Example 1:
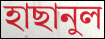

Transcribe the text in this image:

হাছানুল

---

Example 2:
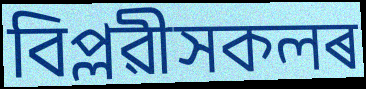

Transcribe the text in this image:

বিপ্লৱীসকলৰ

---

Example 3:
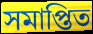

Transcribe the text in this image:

সমাপ্তিত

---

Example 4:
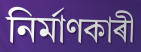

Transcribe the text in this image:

নিৰ্মাণকাৰী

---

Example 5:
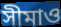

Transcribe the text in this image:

সীমাও